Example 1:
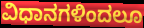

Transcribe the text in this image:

ವಿಧಾನಗಳಿಂದಲೂ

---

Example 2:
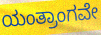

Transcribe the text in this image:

ಯಂತ್ರಾಂಗವೇ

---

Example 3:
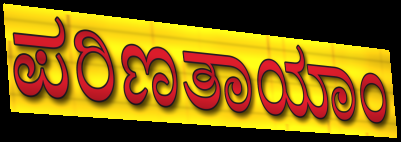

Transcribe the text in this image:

ಪರಿಣತಾಯಾಂ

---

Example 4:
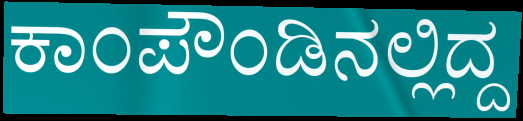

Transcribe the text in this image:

ಕಾಂಪೌಂಡಿನಲ್ಲಿದ್ದ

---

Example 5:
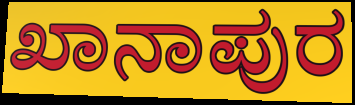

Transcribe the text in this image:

ಖಾನಾಪುರ